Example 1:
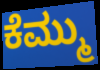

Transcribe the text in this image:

ಕೆಮ್ಮು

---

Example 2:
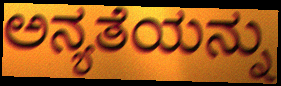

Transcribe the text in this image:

ಅನ್ಯತೆಯನ್ನು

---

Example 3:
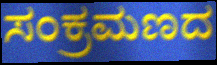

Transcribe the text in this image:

ಸಂಕ್ರಮಣದ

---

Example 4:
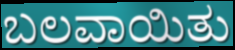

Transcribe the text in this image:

ಬಲವಾಯಿತು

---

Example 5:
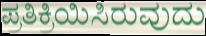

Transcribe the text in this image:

ಪ್ರತಿಕ್ರಿಯಿಸಿರುವುದು